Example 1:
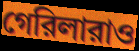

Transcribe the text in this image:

গেরিলারাও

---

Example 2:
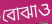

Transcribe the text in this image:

বোঝাও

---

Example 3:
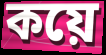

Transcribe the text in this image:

কয়ে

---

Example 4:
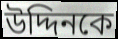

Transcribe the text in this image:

উদ্দিনকে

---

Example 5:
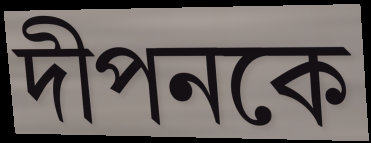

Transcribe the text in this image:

দীপনকে